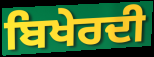
ਬਿਖੇਰਦੀ